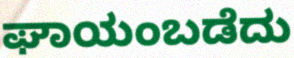
ಘಾಯಂಬಡೆದು